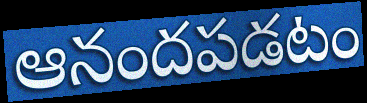
ఆనందపడటం